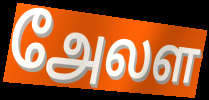
அேலள